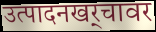
उत्पादनखर्चावर